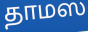
தாமஸ